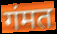
गंमत